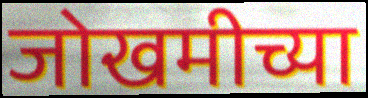
जोखमीच्या